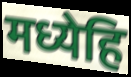
मध्येहि